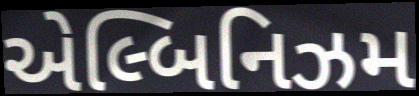
એલ્બિનિઝમ